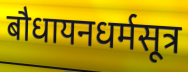
बौधायनधर्मसूत्र